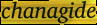
chanagide